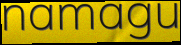
namagu